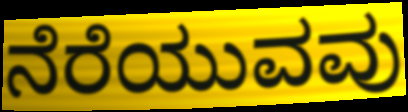
ನೆರೆಯುವವು